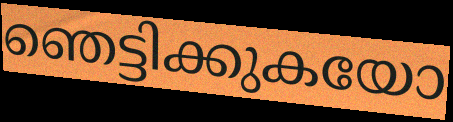
ഞെട്ടിക്കുകയോ